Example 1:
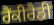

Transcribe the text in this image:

ਰੈਂਕੀਰੈਡੀ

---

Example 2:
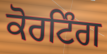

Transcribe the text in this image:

ਕੋਰਟਿੰਗ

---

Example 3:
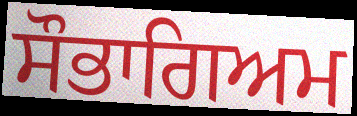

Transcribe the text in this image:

ਸੌਭਾਗਿਅਮ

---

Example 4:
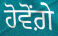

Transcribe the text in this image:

ਹੋਵੋਂਗ਼ੇ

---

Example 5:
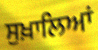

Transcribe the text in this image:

ਸੁਖ਼ਾਲਿਆਂ